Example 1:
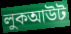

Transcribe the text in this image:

লুকআউট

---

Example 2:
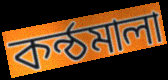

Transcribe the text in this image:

কন্ঠমালা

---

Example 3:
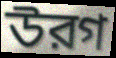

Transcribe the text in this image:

উরগ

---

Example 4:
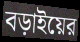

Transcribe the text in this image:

বড়াইয়ের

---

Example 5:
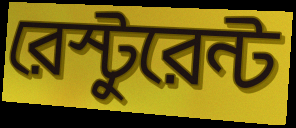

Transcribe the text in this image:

রেস্টুরেন্ট